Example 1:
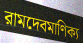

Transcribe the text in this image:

রামদেবমাণিক্য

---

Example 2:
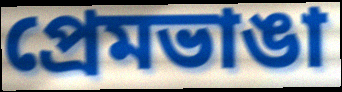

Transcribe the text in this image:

প্রেমভাঙা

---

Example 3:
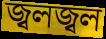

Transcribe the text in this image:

জ্বলজ্বল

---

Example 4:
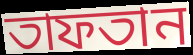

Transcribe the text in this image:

তাফতান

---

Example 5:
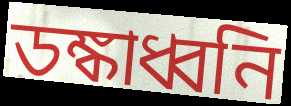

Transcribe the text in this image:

ডঙ্কাধ্বনি